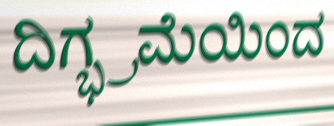
ದಿಗ್ಭ್ರಮೆಯಿಂದ